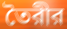
তৈরীর